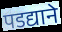
पडद्याने